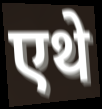
एथे